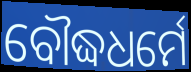
ବୌଦ୍ଧଧର୍ମେ